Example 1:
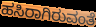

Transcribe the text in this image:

ಹಸಿರಾಗಿರುವಂತೆ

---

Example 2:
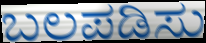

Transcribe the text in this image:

ಬಲಪಡಿಸು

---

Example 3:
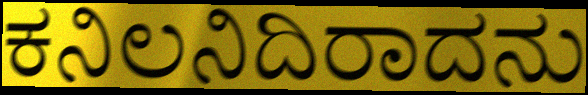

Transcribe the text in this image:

ಕನಿಲನಿದಿರಾದನು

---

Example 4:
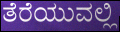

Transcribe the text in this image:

ತೆರೆಯುವಲ್ಲಿ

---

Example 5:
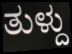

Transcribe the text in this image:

ತುಳ್ದು